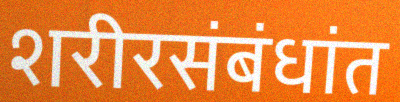
शरीरसंबंधांत